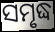
ସମୃଦ୍ଧ